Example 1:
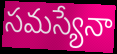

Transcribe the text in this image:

సమస్యేనా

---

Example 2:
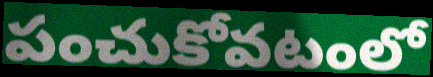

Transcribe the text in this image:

పంచుకోవటంలో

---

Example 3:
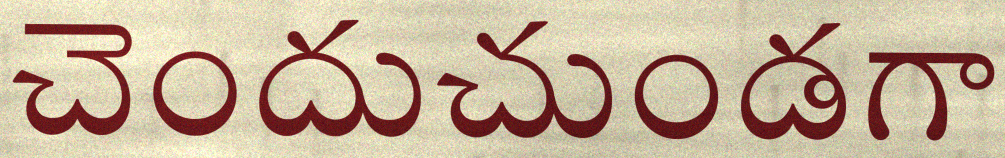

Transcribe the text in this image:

చెందుచుండగా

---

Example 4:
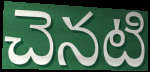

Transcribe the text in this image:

చెనటి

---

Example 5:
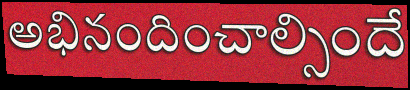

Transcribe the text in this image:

అభినందించాల్సిందే